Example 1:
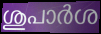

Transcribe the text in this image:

ശുപാർശ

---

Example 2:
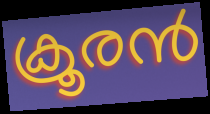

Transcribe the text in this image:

ക്രൂരൻ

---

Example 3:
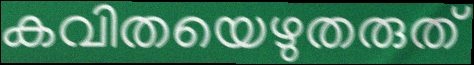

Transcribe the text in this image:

കവിതയെഴുതരുത്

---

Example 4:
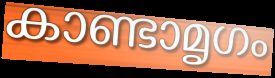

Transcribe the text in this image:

കാണ്ടാമൃഗം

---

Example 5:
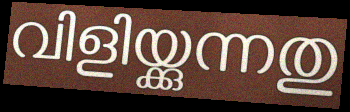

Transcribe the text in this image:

വിളിയ്ക്കുന്നതു